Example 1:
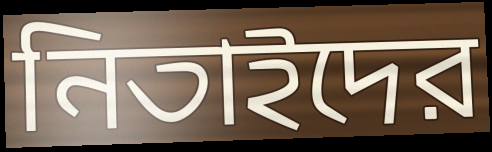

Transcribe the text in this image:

নিতাইদের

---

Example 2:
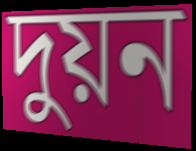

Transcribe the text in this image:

দুয়ন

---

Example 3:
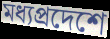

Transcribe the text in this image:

মধ্যপ্রদেশে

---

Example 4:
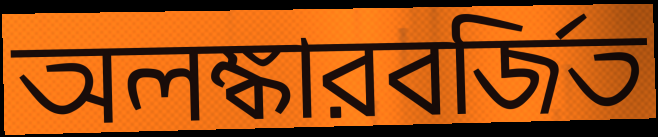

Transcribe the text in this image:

অলঙ্কারবর্জিত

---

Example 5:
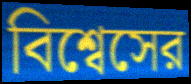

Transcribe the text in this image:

বিশ্বেসের